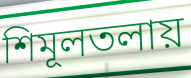
শিমূলতলায়